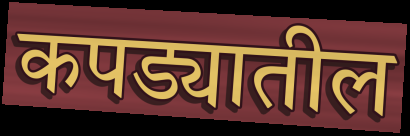
कपड्यातील